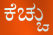
ಕೆಚ್ಚು